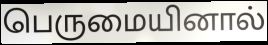
பெருமையினால்